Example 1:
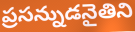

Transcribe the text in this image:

ప్రసన్నుడనైతిని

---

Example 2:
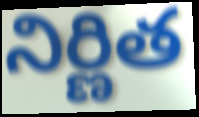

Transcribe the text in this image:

నిర్ణిత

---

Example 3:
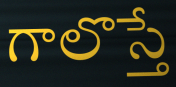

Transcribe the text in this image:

గాలొస్తే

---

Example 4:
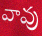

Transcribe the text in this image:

వావు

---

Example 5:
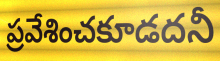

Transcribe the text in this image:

ప్రవేశించకూడదనీ